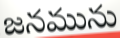
జనమును